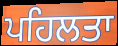
ਪਹਿਲਤਾ